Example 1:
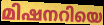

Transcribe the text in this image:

മിഷനറിയെ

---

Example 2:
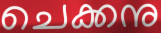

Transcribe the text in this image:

ചെക്കനു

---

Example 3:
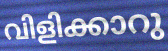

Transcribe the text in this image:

വിളിക്കാറു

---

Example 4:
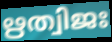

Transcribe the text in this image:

ഋത്വിജഃ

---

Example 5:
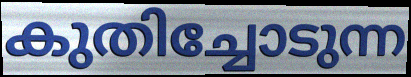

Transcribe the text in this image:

കുതിച്ചോടുന്ന